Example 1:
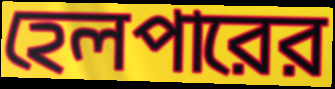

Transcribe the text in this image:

হেলপারের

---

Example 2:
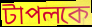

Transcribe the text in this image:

টাপলকে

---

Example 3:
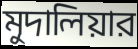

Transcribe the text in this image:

মুদালিয়ার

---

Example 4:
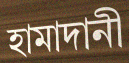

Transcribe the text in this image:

হামাদানী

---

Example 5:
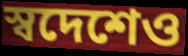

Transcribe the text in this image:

স্বদেশেও